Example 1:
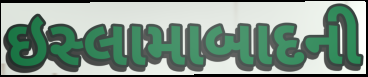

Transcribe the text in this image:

ઇસ્લામાબાદની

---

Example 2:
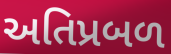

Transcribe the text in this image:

અતિપ્રબળ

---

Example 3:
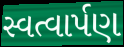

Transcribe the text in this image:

સ્વત્વાર્પણ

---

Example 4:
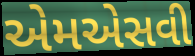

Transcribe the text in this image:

એમએસવી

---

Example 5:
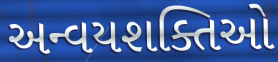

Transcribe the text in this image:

અન્વયશક્તિઓ